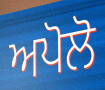
ਅਪੋਲੋ